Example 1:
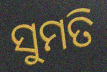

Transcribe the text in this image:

ସୁମତି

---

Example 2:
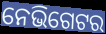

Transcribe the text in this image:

ନେଭିଗେଟର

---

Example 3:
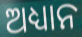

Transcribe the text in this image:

ଅଧ୍ୟାନ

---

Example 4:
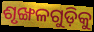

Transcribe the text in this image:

ଶୃଙ୍ଖଳଗୁଡ଼ିକୁ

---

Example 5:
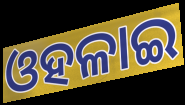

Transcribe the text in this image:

ଓହଳାଇ